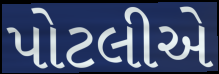
પોટલીએ